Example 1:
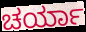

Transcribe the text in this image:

ಚರ್ಯಾ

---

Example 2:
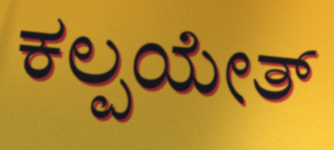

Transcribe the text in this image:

ಕಲ್ಪಯೇತ್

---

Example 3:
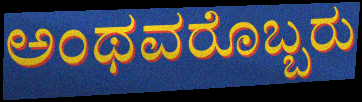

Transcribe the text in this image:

ಅಂಥವರೊಬ್ಬರು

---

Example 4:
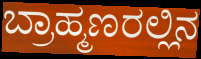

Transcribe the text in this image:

ಬ್ರಾಹ್ಮಣರಲ್ಲಿನ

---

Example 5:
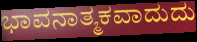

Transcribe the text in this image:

ಭಾವನಾತ್ಮಕವಾದುದು